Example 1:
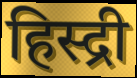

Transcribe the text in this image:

हिस्द्री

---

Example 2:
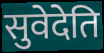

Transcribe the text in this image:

सुवेदेति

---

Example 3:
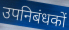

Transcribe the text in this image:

उपनिबंधकों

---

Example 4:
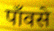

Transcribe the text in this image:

पाँवसे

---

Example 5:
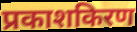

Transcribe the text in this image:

प्रकाशकिरण